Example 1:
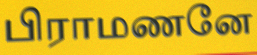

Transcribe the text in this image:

பிராமணனே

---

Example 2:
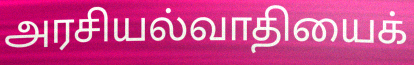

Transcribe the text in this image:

அரசியல்வாதியைக்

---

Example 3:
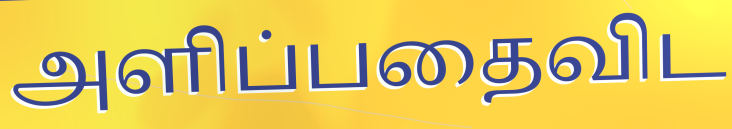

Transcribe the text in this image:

அளிப்பதைவிட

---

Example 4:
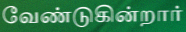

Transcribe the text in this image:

வேண்டுகின்றார்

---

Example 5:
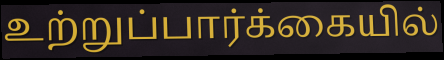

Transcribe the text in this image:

உற்றுப்பார்க்கையில்